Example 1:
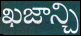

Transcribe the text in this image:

ఖజాన్చి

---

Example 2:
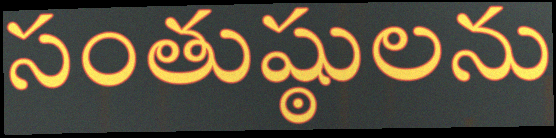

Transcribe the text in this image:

సంతుష్ఠులను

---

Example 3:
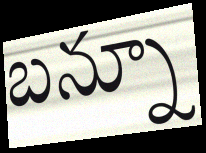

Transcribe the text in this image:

బన్నూ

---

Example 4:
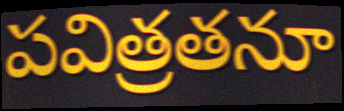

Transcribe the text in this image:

పవిత్రతనూ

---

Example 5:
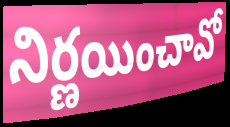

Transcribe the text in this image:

నిర్ణయించావో